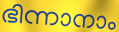
ഭിന്നാനാം